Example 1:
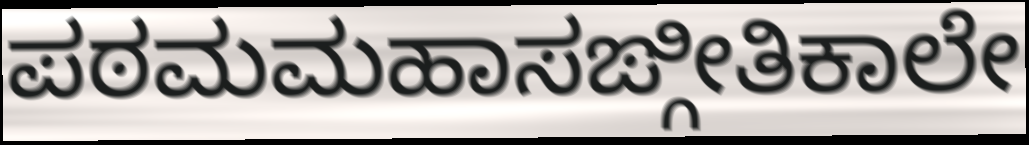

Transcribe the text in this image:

ಪಠಮಮಹಾಸಙ್ಗೀತಿಕಾಲೇ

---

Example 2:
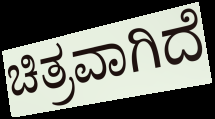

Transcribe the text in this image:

ಚಿತ್ರವಾಗಿದೆ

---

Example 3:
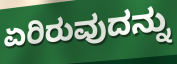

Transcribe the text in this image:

ಏರಿರುವುದನ್ನು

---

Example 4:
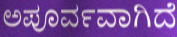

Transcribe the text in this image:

ಅಪೂರ್ವವಾಗಿದೆ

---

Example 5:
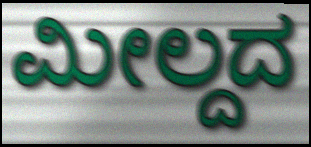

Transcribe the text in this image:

ಮೀಲ್ದದ